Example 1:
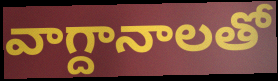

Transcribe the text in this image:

వాగ్దానాలతో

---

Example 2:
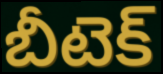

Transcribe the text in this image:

బీటెక్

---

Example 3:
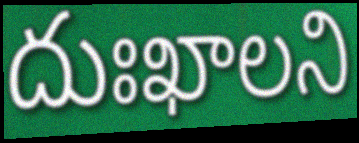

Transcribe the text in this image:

దుఃఖాలని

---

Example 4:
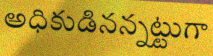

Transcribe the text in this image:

అధికుడినన్నట్టుగా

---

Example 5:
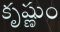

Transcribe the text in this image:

కృష్ణుం